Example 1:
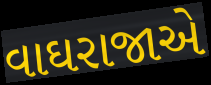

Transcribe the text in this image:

વાઘરાજાએ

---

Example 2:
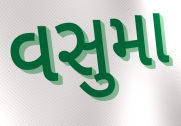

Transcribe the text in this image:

વસુમા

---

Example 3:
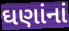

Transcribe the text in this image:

ઘણાંનાં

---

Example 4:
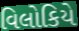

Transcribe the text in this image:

વિલોકિયે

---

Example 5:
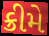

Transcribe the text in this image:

ક્રીમે